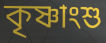
কৃষ্ণাংশু